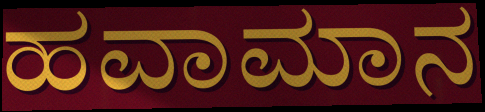
ಹವಾಮಾನ